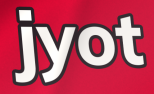
jyot